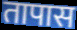
तापास